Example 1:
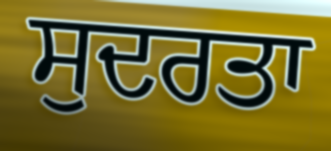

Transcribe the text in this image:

ਸੁਦਰਤਾ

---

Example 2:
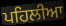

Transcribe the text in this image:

ਪਹਿਲੀਆ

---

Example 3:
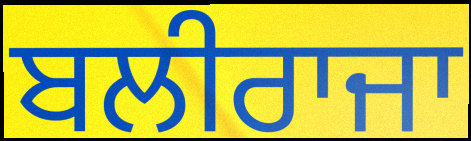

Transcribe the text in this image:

ਬਲੀਰਾਜਾ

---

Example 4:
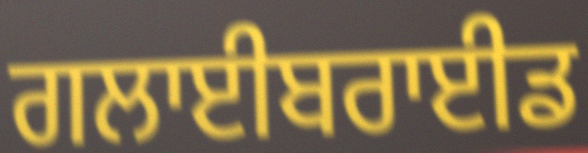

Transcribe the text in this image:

ਗਲਾਈਬਰਾਈਡ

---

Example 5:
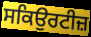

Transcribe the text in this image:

ਸਕਿਉਰਟੀਜ਼